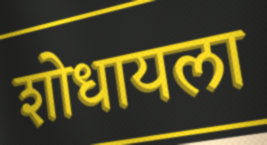
शोधायला